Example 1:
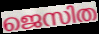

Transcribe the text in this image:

ജെസിത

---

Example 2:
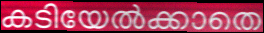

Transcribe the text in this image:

കടിയേൽക്കാതെ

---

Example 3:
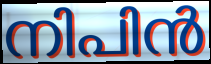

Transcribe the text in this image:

നിപിൻ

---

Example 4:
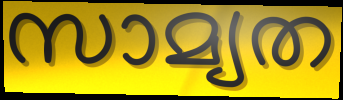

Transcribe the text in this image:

സാമ്യത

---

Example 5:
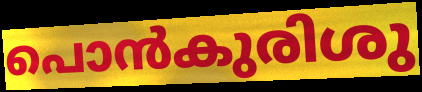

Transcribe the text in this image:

പൊൻകുരിശു